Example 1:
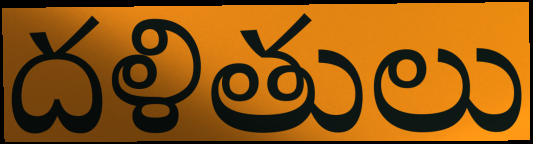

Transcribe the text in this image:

దళితులు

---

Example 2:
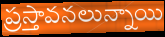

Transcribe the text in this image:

ప్రస్తావనలున్నాయి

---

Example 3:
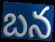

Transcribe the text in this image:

బన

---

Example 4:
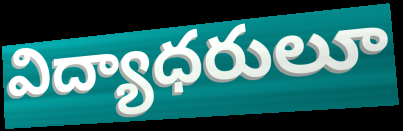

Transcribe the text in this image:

విద్యాధరులూ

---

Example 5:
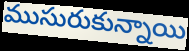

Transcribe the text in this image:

ముసురుకున్నాయి